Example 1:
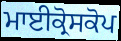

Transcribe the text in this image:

ਮਾਈਕ੍ਰੋਸਕੋਪ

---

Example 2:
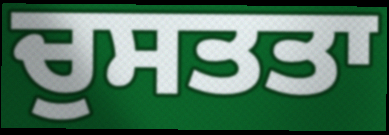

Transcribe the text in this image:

ਚੁਸਤਤਾ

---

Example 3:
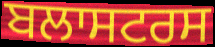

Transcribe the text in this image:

ਬਲਾਸਟਰਸ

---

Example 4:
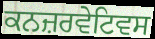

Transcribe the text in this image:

ਕਨਜ਼ਰਵੇਟਿਵਸ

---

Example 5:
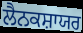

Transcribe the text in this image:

ਲੈਨਕਸ਼ਾਯਰ